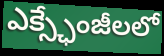
ఎక్స్ఛేంజీలలో